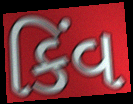
કિંવ